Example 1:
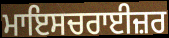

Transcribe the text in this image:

ਮਾਇਸਚਰਾਈਜ਼ਰ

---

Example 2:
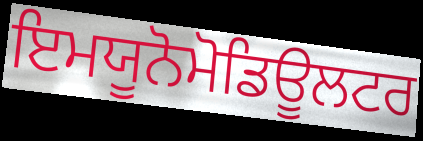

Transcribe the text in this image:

ਇਮਯੂਨੋਮੋਡਿਊਲਟਰ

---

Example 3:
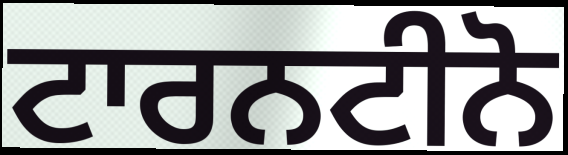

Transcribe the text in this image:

ਟਾਰਨਟੀਨੋ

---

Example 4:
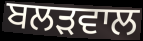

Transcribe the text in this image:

ਬਲੜਵਾਲ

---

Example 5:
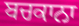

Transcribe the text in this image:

ਬਚਕਾਨਾ